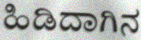
ಹಿಡಿದಾಗಿನ